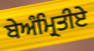
ਬੇਅੰਮ੍ਰਿਤੀਏ